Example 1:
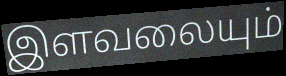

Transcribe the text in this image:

இளவலையும்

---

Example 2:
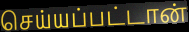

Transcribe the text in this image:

செய்யப்பட்டான்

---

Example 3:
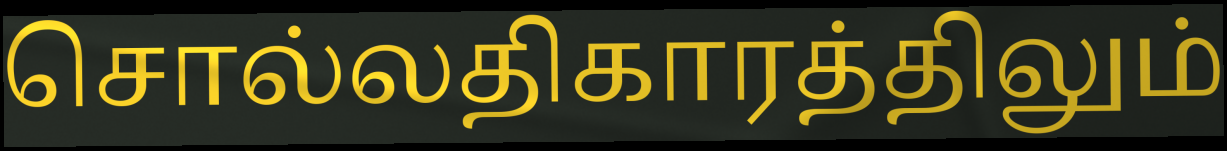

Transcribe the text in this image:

சொல்லதிகாரத்திலும்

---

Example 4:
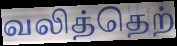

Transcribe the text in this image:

வலித்தெற்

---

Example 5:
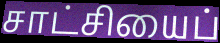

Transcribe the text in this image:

சாட்சியைப்